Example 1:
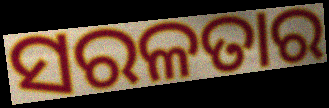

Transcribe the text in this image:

ସରଳତାର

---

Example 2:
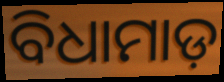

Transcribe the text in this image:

ବିଧାମାଡ଼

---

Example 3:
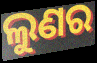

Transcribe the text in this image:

ଲୁଣର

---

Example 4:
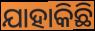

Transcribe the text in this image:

ଯାହାକିଛି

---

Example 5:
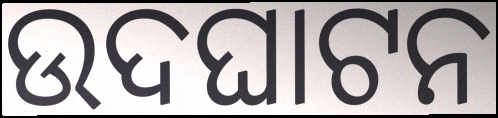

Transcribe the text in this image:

ଉଦଘାଟନ